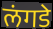
लंगडे